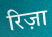
रिज़ा